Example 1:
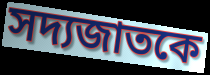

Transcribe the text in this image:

সদ্যজাতকে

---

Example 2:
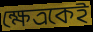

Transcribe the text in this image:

ক্ষেত্রকেই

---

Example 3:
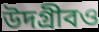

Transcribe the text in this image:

উদগ্রীবও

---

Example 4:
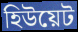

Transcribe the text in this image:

হিউয়েট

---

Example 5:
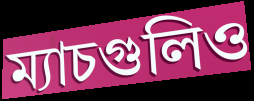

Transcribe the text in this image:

ম্যাচগুলিও